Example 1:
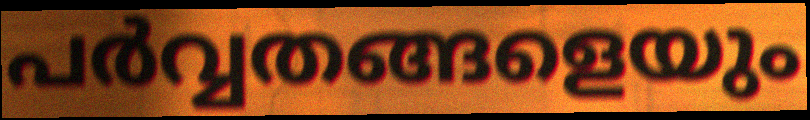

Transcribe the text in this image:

പർവ്വതങ്ങളെയും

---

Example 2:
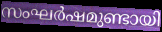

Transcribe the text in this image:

സംഘർഷമുണ്ടായി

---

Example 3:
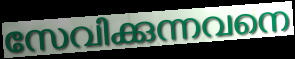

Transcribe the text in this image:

സേവിക്കുന്നവനെ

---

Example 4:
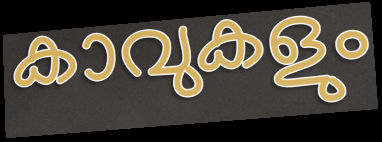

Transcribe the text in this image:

കാവുകളും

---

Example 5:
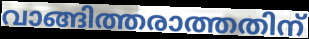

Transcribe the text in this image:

വാങ്ങിത്തരാത്തതിന്